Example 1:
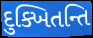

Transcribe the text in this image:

દુક્ખિતન્તિ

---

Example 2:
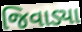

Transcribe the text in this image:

જિવાડ્યા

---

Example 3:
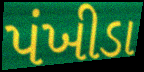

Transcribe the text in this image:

પંખીડા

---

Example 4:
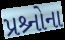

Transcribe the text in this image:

પ્રશ્ર્નોના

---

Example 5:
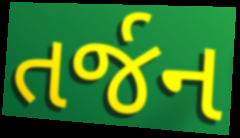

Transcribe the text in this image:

તર્જન